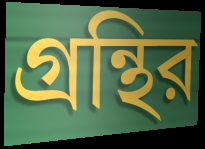
গ্রন্থির